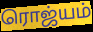
ரொஜ்யம்